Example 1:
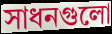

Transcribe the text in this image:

সাধনগুলো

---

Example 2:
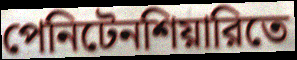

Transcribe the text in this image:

পেনিটেনশিয়ারিতে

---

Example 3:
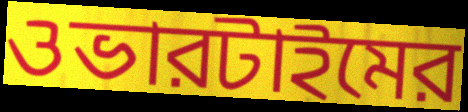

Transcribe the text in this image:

ওভারটাইমের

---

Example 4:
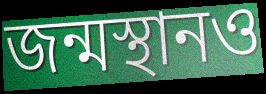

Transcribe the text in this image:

জন্মস্থানও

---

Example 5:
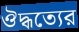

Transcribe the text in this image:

ঔদ্ধত্যের